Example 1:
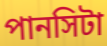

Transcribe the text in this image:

পানসিটা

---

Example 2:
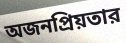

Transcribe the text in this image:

অজনপ্রিয়তার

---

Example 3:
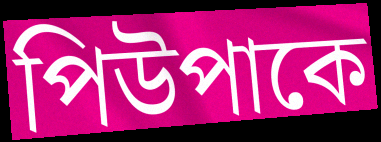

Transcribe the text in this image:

পিউপাকে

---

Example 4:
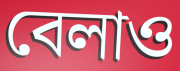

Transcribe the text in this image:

বেলাও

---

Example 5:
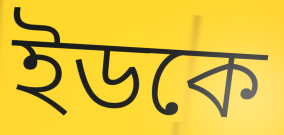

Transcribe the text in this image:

ইডকে